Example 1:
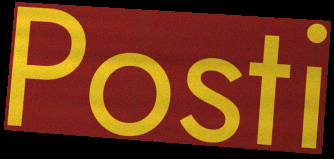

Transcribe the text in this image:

Posti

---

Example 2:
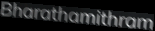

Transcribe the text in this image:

Bharathamithram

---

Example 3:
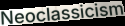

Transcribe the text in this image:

Neoclassicism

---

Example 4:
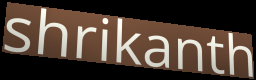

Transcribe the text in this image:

shrikanth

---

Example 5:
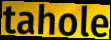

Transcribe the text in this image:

tahole